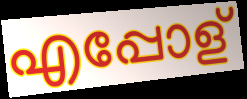
എപ്പോള്